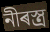
নীৰস্ত্ৰ